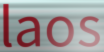
laos